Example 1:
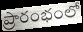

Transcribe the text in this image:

ప్రారంభంలో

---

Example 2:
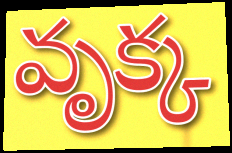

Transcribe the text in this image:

వృక్క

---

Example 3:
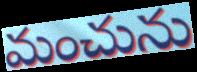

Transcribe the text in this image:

మంచును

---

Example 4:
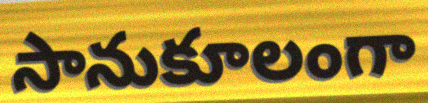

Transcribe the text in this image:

సానుకూలంగా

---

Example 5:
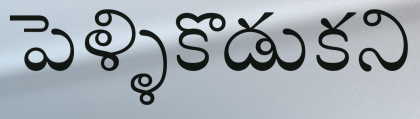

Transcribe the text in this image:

పెళ్ళికొడుకని